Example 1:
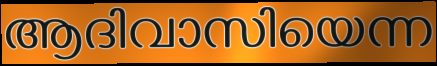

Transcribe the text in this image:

ആദിവാസിയെന്ന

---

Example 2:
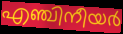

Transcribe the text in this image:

എഞ്ചിനീയർ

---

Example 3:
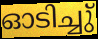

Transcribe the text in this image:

ഓടിച്ചു്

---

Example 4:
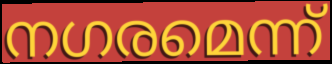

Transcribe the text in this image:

നഗരമെന്ന്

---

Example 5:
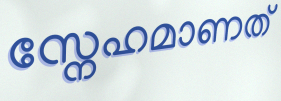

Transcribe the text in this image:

സ്നേഹമാണത്